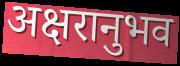
अक्षरानुभव